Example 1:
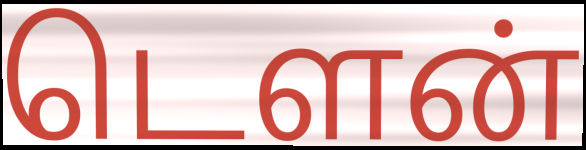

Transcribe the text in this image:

டௌன்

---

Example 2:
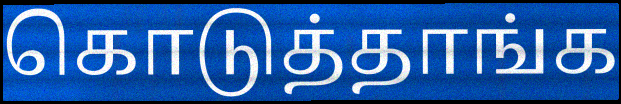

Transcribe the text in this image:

கொடுத்தாங்க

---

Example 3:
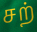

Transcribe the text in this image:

சற்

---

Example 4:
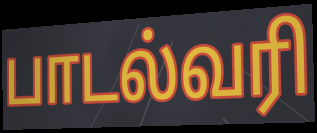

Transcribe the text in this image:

பாடல்வரி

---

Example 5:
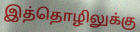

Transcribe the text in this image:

இத்தொழிலுக்கு